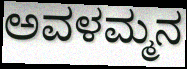
ಅವಳಮ್ಮನ